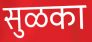
सुळका